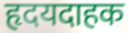
हृदयदाहक